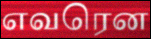
எவரென